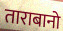
ताराबानो